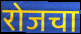
रोजचा